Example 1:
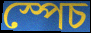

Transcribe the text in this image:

স্পেচ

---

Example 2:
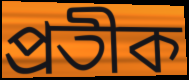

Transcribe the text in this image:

প্ৰতীক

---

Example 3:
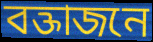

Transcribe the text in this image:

বক্তাজনে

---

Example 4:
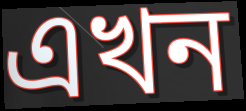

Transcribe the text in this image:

এখন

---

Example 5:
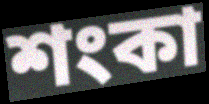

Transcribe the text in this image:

শংকা